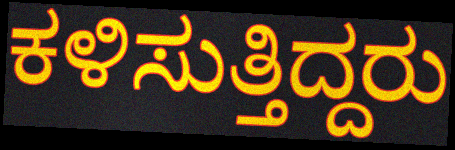
ಕಳಿಸುತ್ತಿದ್ದರು